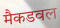
मैकडवल